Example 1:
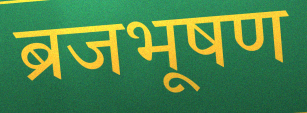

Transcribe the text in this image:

ब्रजभूषण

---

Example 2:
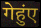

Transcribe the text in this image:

गेहुंए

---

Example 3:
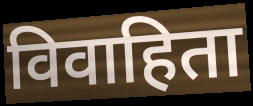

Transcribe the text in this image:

विवाहिता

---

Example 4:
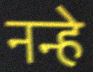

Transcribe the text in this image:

नन्हे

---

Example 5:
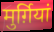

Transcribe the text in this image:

मुर्ग़ियां